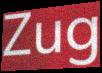
Zug